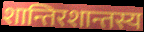
शान्तिरशान्तस्य